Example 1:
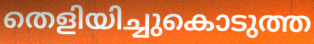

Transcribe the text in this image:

തെളിയിച്ചുകൊടുത്ത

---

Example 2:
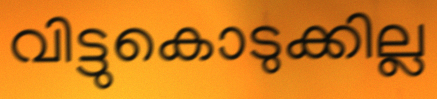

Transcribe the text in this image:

വിട്ടുകൊടുക്കില്ല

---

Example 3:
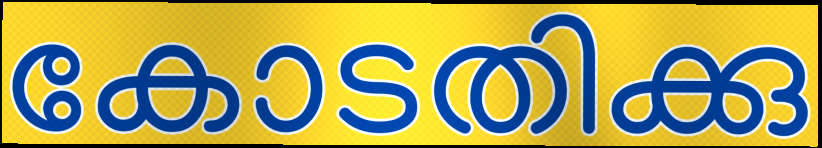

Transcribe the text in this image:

കോടതിക്കു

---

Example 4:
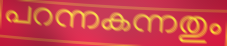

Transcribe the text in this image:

പറന്നകന്നതും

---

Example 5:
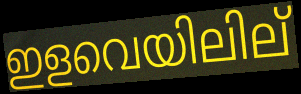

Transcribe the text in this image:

ഇളവെയിലില്